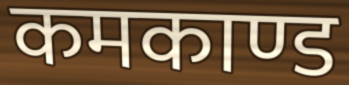
कमकाण्ड